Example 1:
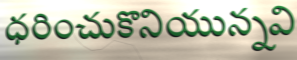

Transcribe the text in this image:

ధరించుకొనియున్నవి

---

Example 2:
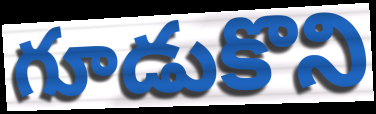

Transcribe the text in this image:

గూడుకొని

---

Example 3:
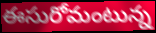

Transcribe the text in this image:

ఈసురోమంటున్న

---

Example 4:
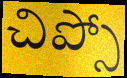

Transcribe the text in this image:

చిప్సో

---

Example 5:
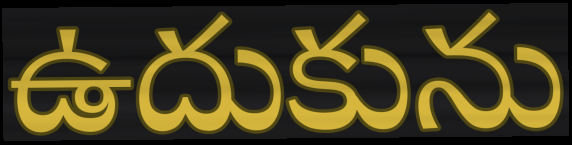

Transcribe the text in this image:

ఉదుకును